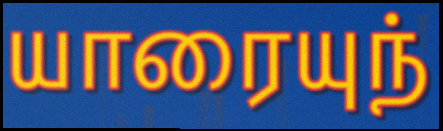
யாரையுந்